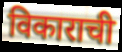
विकाराची